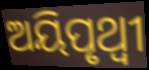
ଅୟିପୃଥ୍ୱୀ